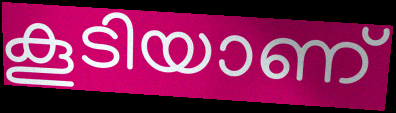
കൂടിയാണ്